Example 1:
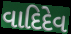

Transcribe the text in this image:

વાદિદેવ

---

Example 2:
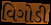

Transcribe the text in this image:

વિગોડી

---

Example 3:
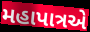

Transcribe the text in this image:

મહાપાત્રએ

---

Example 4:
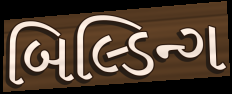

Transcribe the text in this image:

બિલ્ડિન્ગ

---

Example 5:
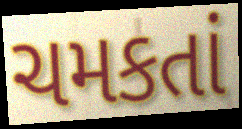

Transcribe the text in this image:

ચમકતાં